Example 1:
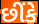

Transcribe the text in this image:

છીંકે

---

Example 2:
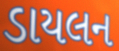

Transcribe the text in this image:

ડાયલન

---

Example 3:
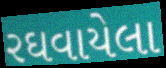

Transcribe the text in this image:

રઘવાયેલા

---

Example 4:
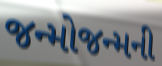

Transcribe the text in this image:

જન્મોજન્મની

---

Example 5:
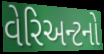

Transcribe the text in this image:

વેરિઅન્ટનો